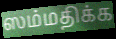
ஸம்மதிக்க